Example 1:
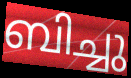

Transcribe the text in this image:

ബിച്ചു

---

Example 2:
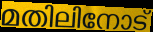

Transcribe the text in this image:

മതിലിനോട്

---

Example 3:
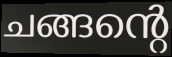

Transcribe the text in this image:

ചങ്ങന്റെ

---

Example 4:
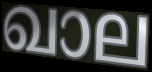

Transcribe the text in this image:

ഖാല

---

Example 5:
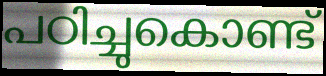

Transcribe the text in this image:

പഠിച്ചുകൊണ്ട്